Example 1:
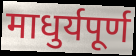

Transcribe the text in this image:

माधुर्यपूर्ण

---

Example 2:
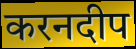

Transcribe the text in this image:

करनदीप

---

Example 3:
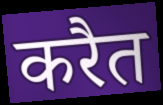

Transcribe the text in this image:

करैत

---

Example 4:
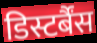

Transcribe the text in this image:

डिस्टर्बैंस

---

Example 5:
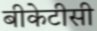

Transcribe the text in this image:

बीकेटीसी